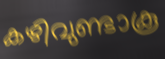
കഴിവുണ്ടാകൂ